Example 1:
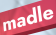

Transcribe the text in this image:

madle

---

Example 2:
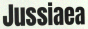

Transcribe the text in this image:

Jussiaea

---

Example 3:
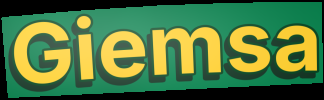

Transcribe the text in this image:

Giemsa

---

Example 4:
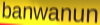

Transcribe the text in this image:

banwanun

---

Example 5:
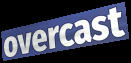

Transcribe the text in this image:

overcast